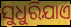
ସୁଧୁରିଯାଏ